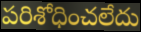
పరిశోధించలేదు